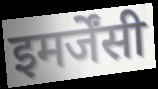
इमर्जेंसी